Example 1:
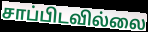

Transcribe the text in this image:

சாப்பிடவில்லை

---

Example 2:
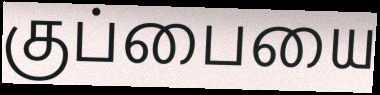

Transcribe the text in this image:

குப்பையை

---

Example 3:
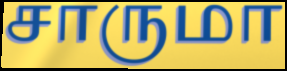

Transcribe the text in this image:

சாருமா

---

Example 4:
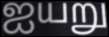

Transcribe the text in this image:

ஐயறு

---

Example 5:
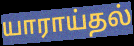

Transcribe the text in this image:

யாராய்தல்